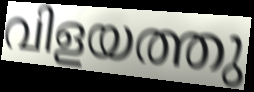
വിളയത്തു